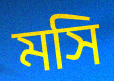
মসি